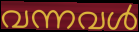
വന്നവൾ